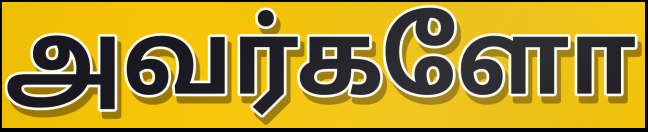
அவர்களோ